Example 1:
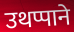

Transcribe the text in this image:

उथप्पाने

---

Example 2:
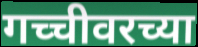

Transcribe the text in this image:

गच्चीवरच्या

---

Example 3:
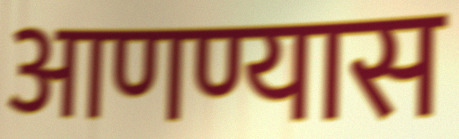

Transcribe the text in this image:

आणण्यास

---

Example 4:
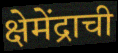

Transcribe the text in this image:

क्षेमेंद्राची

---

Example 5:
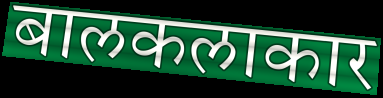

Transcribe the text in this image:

बालकलाकार